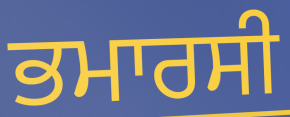
ਭਮਾਰਸੀ